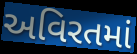
અવિરતમાં